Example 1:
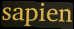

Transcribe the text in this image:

sapien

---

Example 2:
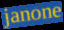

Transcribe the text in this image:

janone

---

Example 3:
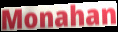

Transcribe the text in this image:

Monahan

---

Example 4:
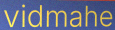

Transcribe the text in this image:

vidmahe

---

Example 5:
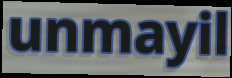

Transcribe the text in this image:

unmayil